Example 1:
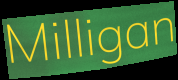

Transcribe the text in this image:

Milligan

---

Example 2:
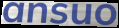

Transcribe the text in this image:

ansuo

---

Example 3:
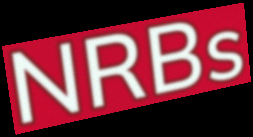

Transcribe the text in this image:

NRBs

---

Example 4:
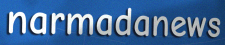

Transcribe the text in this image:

narmadanews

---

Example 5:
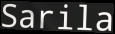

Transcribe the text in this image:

Sarila